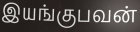
இயங்குபவன்